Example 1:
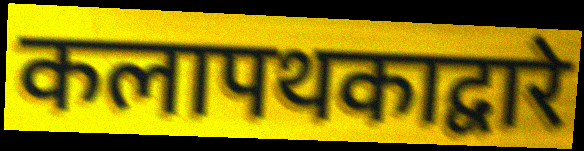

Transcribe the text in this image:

कलापथकाद्वारे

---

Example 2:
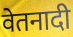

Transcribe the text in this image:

वेतनादी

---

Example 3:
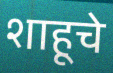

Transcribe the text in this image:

शाहूचे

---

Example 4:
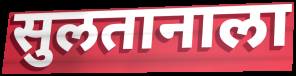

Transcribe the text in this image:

सुलतानाला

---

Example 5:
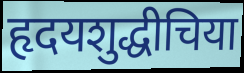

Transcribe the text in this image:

हृदयशुद्धीचिया